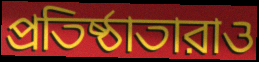
প্রতিষ্ঠাতারাও